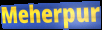
Meherpur